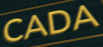
CADA